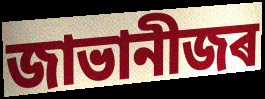
জাভানীজৰ